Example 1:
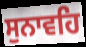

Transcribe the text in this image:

ਸੁਨਾਵਹਿ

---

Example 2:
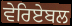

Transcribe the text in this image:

ਵੇਰਿਏਬਲ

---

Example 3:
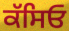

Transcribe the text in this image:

ਕੱਸਿਓ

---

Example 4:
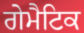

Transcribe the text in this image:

ਗੇਮੈਟਿਕ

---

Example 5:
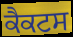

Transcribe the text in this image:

ਕੈਕਟਸ